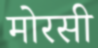
मोरसी